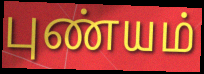
புண்யம்